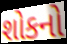
શોકનો